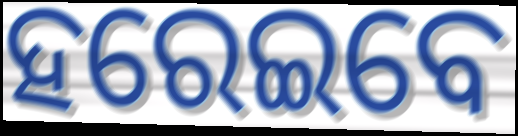
ହରେଇବେ